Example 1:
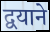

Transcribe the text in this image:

द्वयाने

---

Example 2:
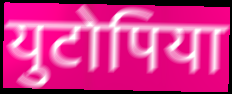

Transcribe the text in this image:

युटोपिया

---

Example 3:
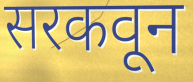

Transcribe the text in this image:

सरकवून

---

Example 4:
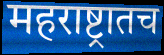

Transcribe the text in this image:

महराष्ट्रातच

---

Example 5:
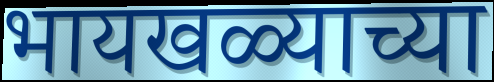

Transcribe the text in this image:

भायखळ्याच्या